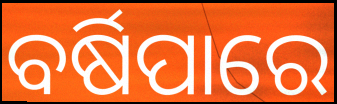
ବର୍ଷିପାରେ